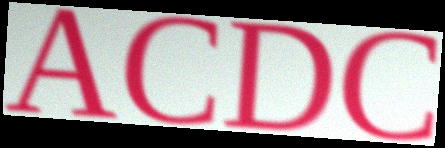
ACDC